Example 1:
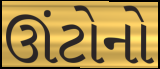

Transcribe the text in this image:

ઊંટોનો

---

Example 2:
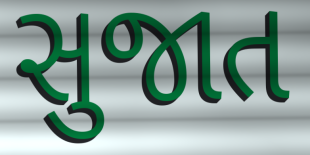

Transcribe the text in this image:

સુજાત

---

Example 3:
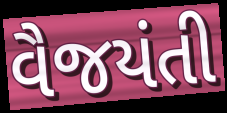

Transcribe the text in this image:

વૈજયંતી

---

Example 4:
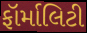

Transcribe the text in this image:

ફૉર્માલિટી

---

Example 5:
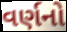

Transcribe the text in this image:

વર્ણનો